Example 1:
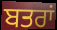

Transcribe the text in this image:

ਬਤਰਾਂ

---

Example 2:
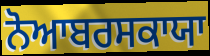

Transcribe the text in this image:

ਨੋਆਬਰਸਕਾਯਾ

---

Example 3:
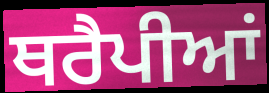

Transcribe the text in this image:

ਥਰੈਪੀਆਂ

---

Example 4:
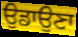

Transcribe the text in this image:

ਉਡਾਉਣਾ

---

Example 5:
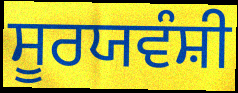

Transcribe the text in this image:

ਸੂਰਯਵੰਸ਼ੀ